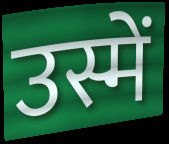
उस्में